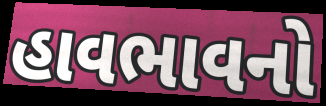
હાવભાવનો